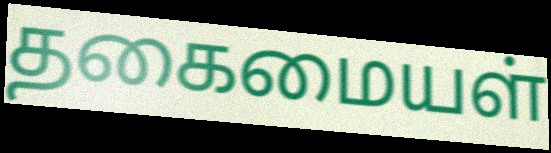
தகைமையள்